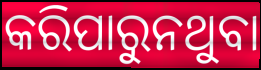
କରିପାରୁନଥୁବା